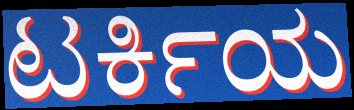
ಟರ್ಕಿಯ